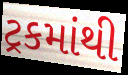
ટ્રકમાંથી